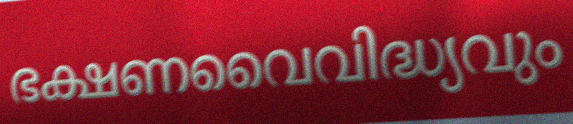
ഭക്ഷണവൈവിദ്ധ്യവും